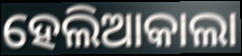
ହେଲିଆକାଲା